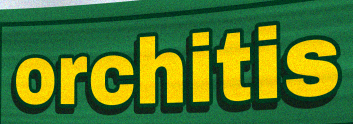
orchitis